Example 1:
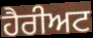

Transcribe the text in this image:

ਹੈਰੀਅਟ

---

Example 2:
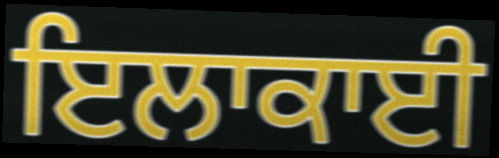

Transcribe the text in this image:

ਇਲਾਕਾਈ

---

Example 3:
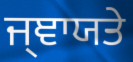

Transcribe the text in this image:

ਜ੍ਞਾਯਤੇ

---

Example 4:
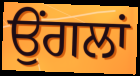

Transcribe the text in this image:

ਉਂਗਲਾਂ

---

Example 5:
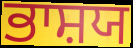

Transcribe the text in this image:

ਭਾਸ਼ਯ